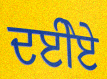
ਦਈੇਏ